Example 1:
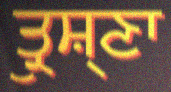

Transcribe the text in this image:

ਤ੍ਰੁਸ਼੍ਣਾ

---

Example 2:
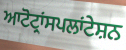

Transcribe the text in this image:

ਆਟੋਟ੍ਰਾਂਸਪਲਾਂਟੇਸ਼ਨ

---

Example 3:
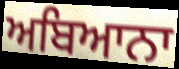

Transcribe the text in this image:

ਅਬਿਆਨਾ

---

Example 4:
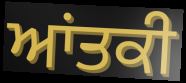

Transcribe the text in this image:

ਆਂਤਕੀ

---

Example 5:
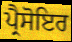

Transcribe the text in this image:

ਪ੍ਰੈਸੋਇਰ